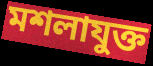
মশলাযুক্ত